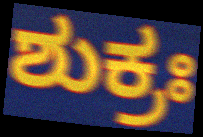
ಶುಕ್ರಃ